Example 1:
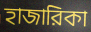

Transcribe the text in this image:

হাজারিকা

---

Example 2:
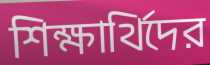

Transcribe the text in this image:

শিক্ষার্থিদের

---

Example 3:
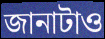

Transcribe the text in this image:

জানাটাও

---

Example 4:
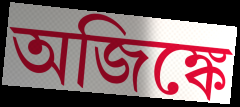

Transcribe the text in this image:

অজিঙ্কে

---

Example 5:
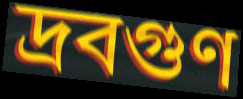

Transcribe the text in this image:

দ্রবগুণ